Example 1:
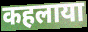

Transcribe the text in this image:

कहलाया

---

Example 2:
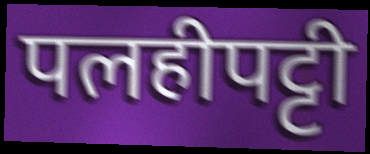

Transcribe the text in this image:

पलहीपट्टी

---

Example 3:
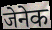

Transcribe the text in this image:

जेनेक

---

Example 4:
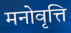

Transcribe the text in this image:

मनोवृत्ति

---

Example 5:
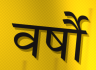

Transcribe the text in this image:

वर्षौ